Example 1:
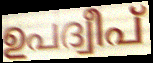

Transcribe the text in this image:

ഉപദ്വീപ്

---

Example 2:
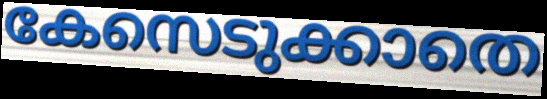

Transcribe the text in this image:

കേസെടുക്കാതെ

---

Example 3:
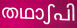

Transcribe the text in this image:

തഥാഽപി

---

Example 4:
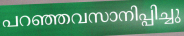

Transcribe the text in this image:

പറഞ്ഞവസാനിപ്പിച്ചു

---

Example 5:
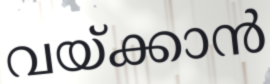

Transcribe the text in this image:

വയ്ക്കാൻ